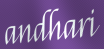
andhari